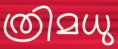
ത്രിമധു